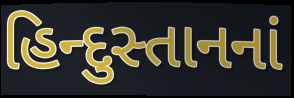
હિન્દુસ્તાનનાં